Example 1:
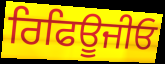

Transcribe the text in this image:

ਰਿਫਿਊਜੀਓ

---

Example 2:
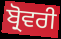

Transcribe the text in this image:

ਬ੍ਰੋਵਰੀ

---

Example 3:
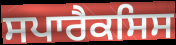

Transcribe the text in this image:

ਸਪਾਰੈਕਸਿਸ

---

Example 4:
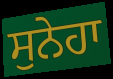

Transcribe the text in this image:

ਸੁਨੇਹਾ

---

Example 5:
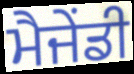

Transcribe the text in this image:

ਮੈਜੇਂਡੀ